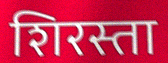
शिरस्ता